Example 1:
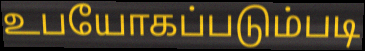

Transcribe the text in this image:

உபயோகப்படும்படி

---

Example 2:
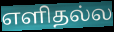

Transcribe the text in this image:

எளிதல்ல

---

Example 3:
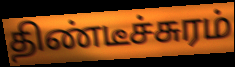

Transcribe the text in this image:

திண்டீச்சுரம்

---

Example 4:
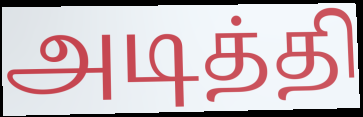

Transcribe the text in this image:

அடித்தி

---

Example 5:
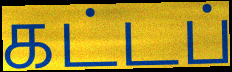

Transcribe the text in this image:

கட்டப்